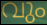
വും